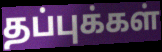
தப்புக்கள்